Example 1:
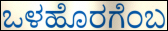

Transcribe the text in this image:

ಒಳಹೊರಗೆಂಬ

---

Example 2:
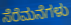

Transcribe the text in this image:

ಸೆರೆಮನೆಗಳು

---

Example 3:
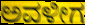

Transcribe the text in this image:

ಅವಳೀಗ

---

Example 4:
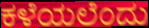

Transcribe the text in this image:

ಕಳೆಯಲೆಂದು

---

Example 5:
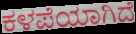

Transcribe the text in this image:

ಕಳಪೆಯಾಗಿದೆ